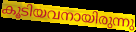
കൂടിയവനായിരുന്നു